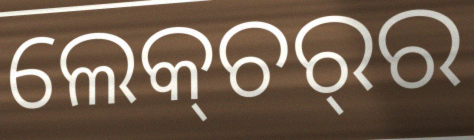
ଲେକ୍‌ଚର୍‌ର